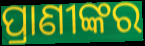
ପ୍ରାଣୀଙ୍କର